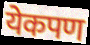
येकपण